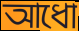
আধো